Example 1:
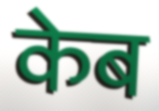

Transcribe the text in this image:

केब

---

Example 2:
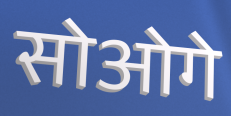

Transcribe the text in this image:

सोओगे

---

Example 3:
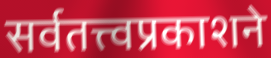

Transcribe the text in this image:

सर्वतत्त्वप्रकाशने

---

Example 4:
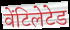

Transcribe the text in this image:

वेंटिलेटेड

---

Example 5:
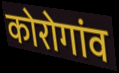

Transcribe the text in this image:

कोरोगांव